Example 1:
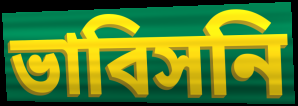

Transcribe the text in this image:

ভাবিসনি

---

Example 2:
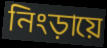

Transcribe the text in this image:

নিংড়ায়ে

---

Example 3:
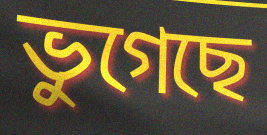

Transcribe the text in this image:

ভুগেছে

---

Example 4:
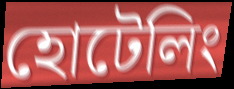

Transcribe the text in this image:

হোটেলিং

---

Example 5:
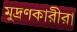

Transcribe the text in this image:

মুদ্রণকারীরা